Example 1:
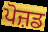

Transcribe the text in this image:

ਪੋਜ਼ਡ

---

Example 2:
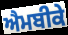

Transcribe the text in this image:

ਐਮਬੀਕੇ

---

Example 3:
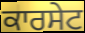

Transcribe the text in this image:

ਕਾਰਸੇਟ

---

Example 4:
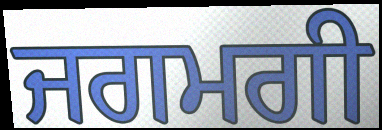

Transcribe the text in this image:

ਜਗਮਗੀ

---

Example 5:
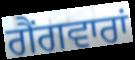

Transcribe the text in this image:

ਗੈਂਗਵਾਰਾਂ